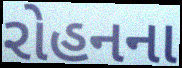
રોહનના